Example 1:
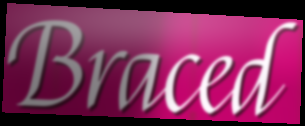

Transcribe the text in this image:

Braced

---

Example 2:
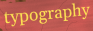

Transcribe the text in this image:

typography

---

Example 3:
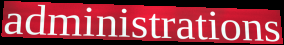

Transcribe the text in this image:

administrations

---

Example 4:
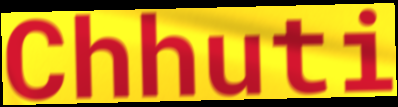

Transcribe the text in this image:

Chhuti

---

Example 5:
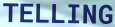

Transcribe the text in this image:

TELLING